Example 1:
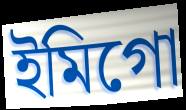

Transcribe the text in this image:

ইমিগো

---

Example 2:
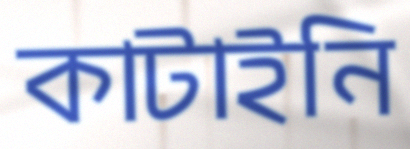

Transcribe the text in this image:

কাটাইনি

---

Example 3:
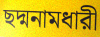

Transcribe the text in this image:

ছদ্মনামধারী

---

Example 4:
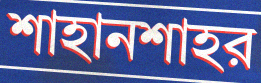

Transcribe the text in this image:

শাহানশাহর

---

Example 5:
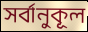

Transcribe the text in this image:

সর্বানুকূল